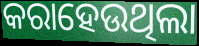
କରାହେଉଥିଲା